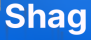
Shag